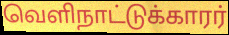
வெளிநாட்டுக்காரர்